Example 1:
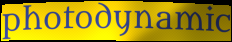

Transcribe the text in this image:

photodynamic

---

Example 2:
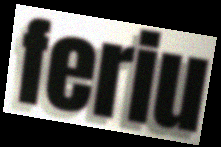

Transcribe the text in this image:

feriu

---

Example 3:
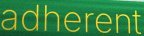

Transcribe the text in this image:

adherent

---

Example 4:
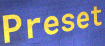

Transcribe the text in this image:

Preset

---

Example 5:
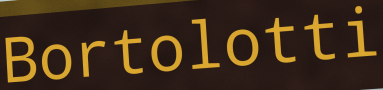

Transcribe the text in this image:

Bortolotti